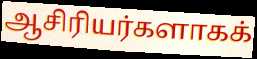
ஆசிரியர்களாகக்